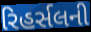
રિહર્સલની